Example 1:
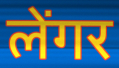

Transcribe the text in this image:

लेंगर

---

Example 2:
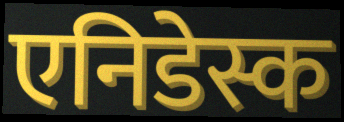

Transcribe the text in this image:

एनिडेस्क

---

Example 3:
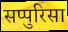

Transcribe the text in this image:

सप्पुरिसा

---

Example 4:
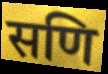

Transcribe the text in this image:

सणि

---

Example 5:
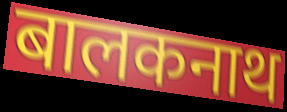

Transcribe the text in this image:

बालकनाथ